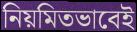
নিয়মিতভাবেই